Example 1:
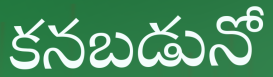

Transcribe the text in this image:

కనబడునో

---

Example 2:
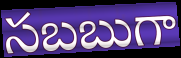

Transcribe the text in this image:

సబబుగా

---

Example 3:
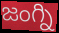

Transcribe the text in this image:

జంగ్ని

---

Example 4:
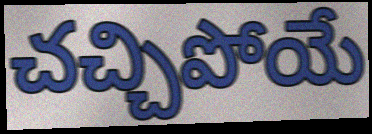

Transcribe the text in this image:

చచ్చిపోయే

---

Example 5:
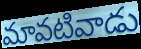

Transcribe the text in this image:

మావటివాడు